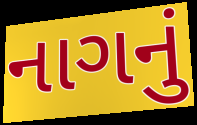
નાગનું